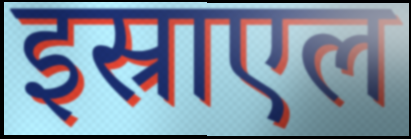
इस्राएल